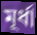
মূর্ধা